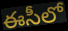
ఈసీలో